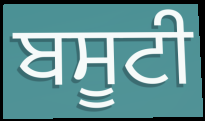
ਬਸੂਟੀ